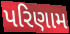
પરિણામ